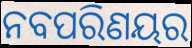
ନବପରିଣୟର